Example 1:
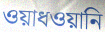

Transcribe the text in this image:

ওয়াধওয়ানি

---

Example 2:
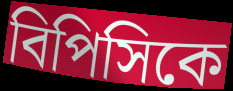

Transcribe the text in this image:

বিপিসিকে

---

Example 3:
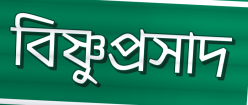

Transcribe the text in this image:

বিষ্ণুপ্রসাদ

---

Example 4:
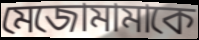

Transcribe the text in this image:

মেজোমামাকে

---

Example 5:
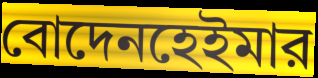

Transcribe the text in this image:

বোদেনহেইমার